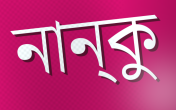
নান্‌কু